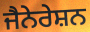
ਜੈਨੇਰੇਸ਼ਨ